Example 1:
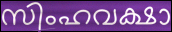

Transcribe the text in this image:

സിംഹവക്ഷാ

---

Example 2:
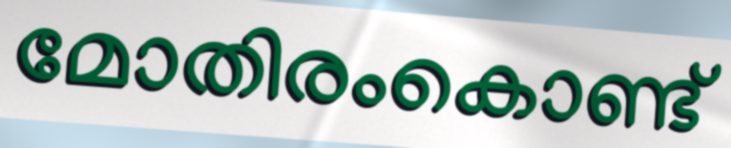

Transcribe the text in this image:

മോതിരംകൊണ്ട്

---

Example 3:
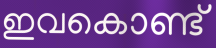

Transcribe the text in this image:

ഇവകൊണ്ട്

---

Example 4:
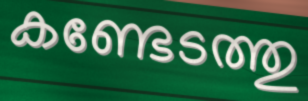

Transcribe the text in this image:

കണ്ടേടത്തു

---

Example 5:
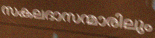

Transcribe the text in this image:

സകലദാസന്മാരിലും